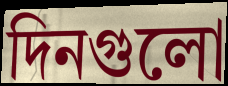
দিনগুলো